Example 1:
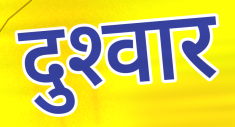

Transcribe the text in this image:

दुश्‍वार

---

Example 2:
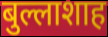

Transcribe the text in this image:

बुल्लाशाह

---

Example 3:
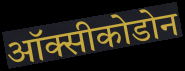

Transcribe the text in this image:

ऑक्सीकोडोन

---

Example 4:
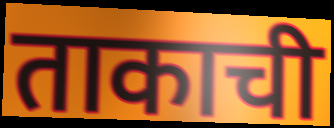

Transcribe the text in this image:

ताकाची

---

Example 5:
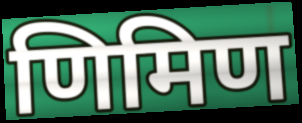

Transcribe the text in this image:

णिमिण